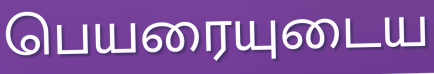
பெயரையுடைய